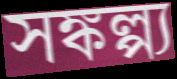
সঙ্কল্প্য